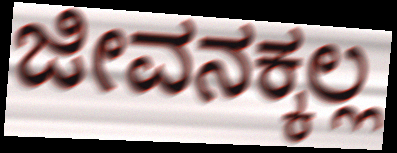
ಜೀವನಕ್ಕಲ್ಲ